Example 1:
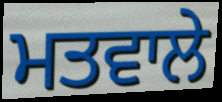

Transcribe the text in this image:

ਮਤਵਾਲੇ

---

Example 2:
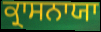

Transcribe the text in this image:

ਕ੍ਰਾਸਨਾਯਾ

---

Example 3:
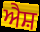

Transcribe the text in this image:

ਐਸ਼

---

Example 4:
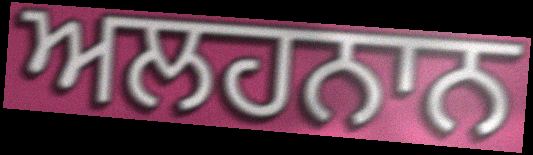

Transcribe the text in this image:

ਅਲਹਨਾਨ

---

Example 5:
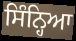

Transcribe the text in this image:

ਸਿੰਨ੍ਹਿਆ